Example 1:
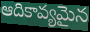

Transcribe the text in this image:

ఆదికావ్యమైన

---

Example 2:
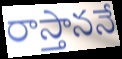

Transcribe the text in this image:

రాస్తాననే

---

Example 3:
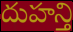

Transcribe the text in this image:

దుహన్తి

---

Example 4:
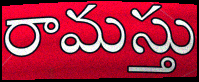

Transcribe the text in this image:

రామస్తు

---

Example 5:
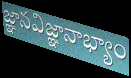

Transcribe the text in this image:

జ్ఞానవిజ్ఞానాభ్యాం